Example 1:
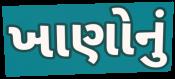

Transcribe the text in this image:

ખાણોનું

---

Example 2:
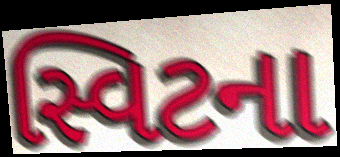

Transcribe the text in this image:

સ્વિટના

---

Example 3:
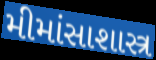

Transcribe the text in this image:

મીમાંસાશાસ્ત્ર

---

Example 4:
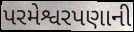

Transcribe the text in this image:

પરમેશ્વરપણાની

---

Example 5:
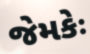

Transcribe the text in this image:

જેમકેઃ